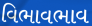
વિભાવભાવ